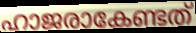
ഹാജരാകേണ്ടത്